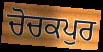
ਚੋਚਕਪੁਰ